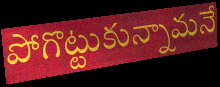
పోగొట్టుకున్నామనే